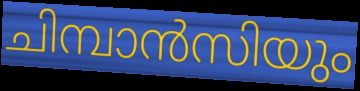
ചിമ്പാൻസിയും